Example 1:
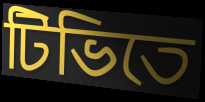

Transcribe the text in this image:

টিভিতে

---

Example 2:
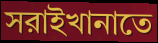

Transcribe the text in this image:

সরাইখানাতে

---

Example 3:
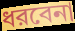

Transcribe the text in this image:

ধরবেনা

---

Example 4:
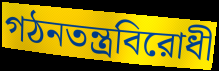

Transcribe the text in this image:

গঠনতন্ত্রবিরোধী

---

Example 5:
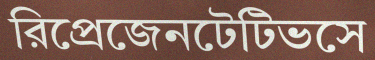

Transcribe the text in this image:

রিপ্রেজেনটেটিভসে